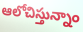
ఆలోచిస్తున్నాం